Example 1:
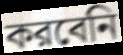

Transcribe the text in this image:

করবেনি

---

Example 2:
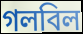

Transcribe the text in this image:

গলবিল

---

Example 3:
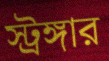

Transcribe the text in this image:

স্ট্রঙ্গার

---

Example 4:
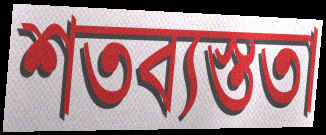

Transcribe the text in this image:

শতব্যস্ততা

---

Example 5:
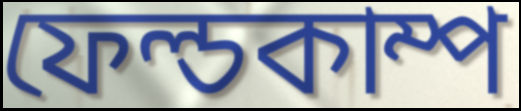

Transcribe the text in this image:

ফেল্ডকাম্প